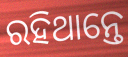
ରହିଥାନ୍ତେ